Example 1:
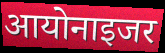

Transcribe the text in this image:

आयोनाइजर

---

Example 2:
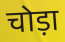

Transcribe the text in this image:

चोड़ा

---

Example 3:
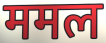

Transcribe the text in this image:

ममल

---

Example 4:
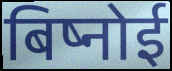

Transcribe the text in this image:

बिष्नोई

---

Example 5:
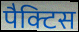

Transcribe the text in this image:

पैक्टिस